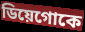
ডিয়েগোকে